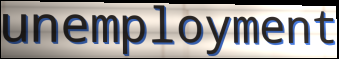
unemployment